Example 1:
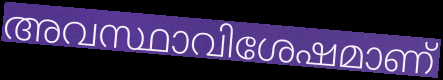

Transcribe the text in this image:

അവസ്ഥാവിശേഷമാണ്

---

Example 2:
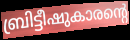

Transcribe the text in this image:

ബ്രിട്ടീഷുകാരന്റെ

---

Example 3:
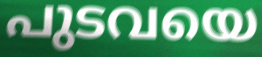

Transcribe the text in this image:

പുടവയെ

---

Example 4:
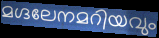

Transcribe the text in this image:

മഗ്ദലേനമറിയവും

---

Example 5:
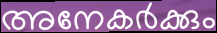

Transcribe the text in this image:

അനേകർക്കും